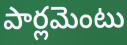
పార్లమెంటు